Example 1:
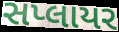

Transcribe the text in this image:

સપ્લાયર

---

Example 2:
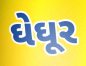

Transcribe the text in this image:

ઘેઘૂર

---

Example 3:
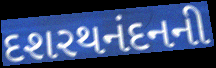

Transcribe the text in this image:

દશરથનંદનની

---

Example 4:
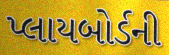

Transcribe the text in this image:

પ્લાયબોર્ડની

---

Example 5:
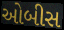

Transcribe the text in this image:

ઓબીસ